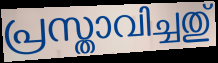
പ്രസ്താവിച്ചതു്